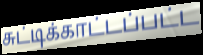
சுட்டிக்காட்டப்பட்ட